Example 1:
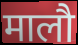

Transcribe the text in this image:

मालौ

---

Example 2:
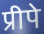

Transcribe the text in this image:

प्रीपे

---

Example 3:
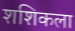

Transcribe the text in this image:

शशिकला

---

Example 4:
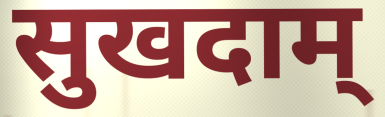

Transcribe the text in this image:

सुखदाम्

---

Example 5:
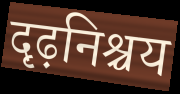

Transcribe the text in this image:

दृढ़निश्चय